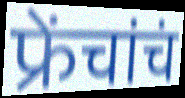
फ्रेंचांचं